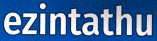
ezintathu